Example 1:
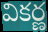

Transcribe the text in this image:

వికర్ణ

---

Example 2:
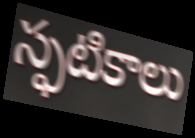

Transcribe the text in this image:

స్ఫటికాలు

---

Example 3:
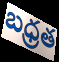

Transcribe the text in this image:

బధ్రత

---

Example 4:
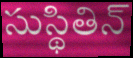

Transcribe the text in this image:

సుస్థితిన్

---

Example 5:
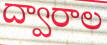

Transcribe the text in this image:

ద్వారాల